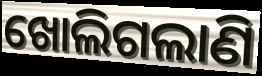
ଖୋଲିଗଲାଣି